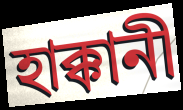
হাক্কানী